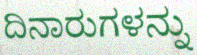
ದಿನಾರುಗಳನ್ನು